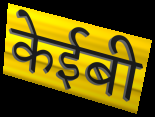
केईबी